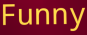
Funny